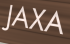
JAXA